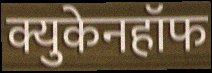
क्युकेनहॉफ